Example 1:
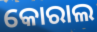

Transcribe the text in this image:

କୋରାଲ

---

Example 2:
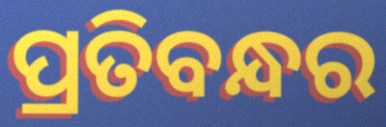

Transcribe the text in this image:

ପ୍ରତିବନ୍ଧର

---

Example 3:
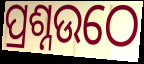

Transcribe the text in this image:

ପ୍ରଶ୍ନଉଠେ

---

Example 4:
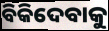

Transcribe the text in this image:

ବିକିଦେବାକୁ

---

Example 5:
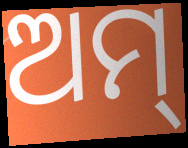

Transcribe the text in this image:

ଅମ୍